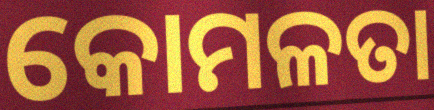
କୋମଳତା